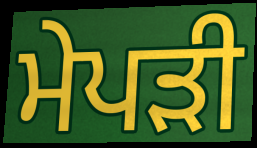
ਮੇਪੜੀ